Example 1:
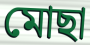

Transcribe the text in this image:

মোছা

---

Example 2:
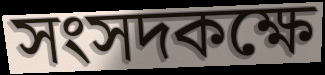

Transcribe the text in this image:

সংসদকক্ষে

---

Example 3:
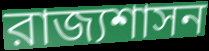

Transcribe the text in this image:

রাজ্যশাসন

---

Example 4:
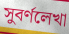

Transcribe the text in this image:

সুবর্ণলেখা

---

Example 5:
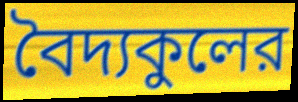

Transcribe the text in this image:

বৈদ্যকুলের